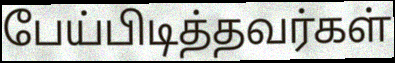
பேய்பிடித்தவர்கள்